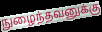
நுழைந்தவனுக்கு